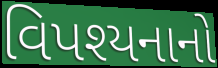
વિપશ્યનાનો